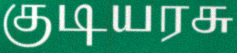
குடியரசு